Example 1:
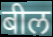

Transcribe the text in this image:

बील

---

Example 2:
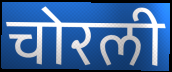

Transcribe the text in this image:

चोरली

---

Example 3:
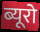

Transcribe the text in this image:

ब्यूरो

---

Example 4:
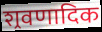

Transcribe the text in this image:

श्रवणादिक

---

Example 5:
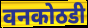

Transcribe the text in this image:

वनकोठडी